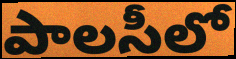
పాలసీలో